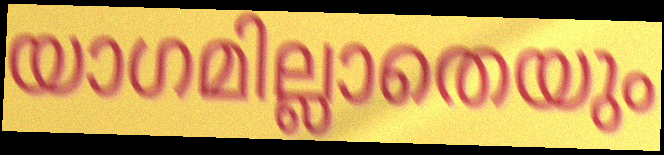
യാഗമില്ലാതെയും